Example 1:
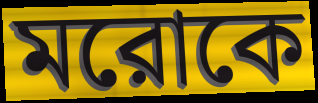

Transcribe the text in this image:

মরোকে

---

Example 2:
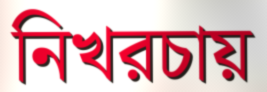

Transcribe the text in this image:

নিখরচায়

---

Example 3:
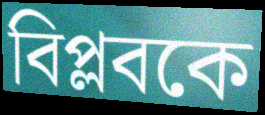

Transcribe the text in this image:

বিপ্লবকে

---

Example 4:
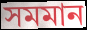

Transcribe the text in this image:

সমমান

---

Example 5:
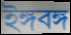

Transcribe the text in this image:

ইঙ্গবঙ্গ